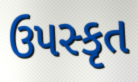
ઉપસ્કૃત